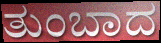
ತುಂಬಾದ